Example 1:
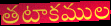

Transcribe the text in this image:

తటాకముల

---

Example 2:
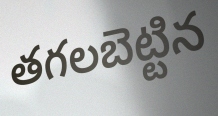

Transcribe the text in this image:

తగలబెట్టిన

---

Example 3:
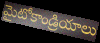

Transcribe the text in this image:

మైటోకాండ్రియాలు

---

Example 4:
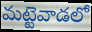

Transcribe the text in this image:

మట్టెవాడలో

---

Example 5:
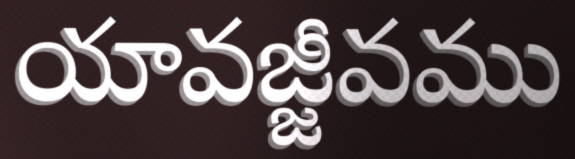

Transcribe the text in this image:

యావజ్జీవము